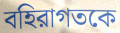
বহিরাগতকে